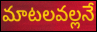
మాటలవల్లనే